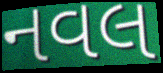
નવલ